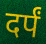
दर्पं